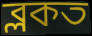
ব্লকত